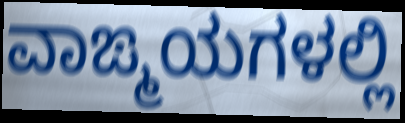
ವಾಙ್ಮಯಗಳಲ್ಲಿ